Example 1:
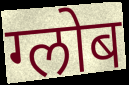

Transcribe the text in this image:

ग्लोब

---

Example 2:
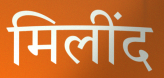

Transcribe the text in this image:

मिलींद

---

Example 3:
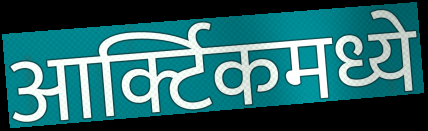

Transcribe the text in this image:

आर्क्टिकमध्ये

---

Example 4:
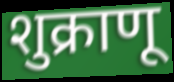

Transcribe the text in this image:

शुक्राणू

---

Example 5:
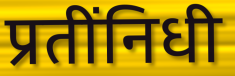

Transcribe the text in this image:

प्रतींनिधी